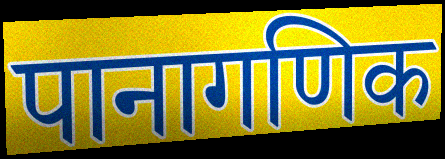
पानागणिक